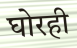
घोरही